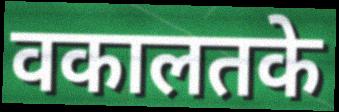
वकालतके